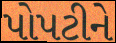
પોપટીને